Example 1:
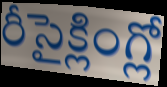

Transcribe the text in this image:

రీసైక్లింగ్లో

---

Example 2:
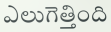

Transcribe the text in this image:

ఎలుగెత్తింది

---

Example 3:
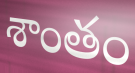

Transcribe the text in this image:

శాంతం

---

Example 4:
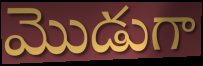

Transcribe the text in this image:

మొడుగా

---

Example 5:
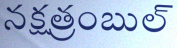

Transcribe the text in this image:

నక్షత్రంబుల్